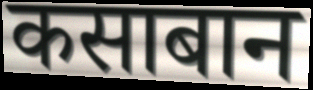
कसाबान